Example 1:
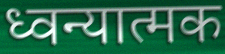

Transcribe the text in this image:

ध्वन्यात्मक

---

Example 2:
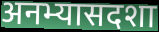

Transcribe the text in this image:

अनभ्यासदशा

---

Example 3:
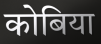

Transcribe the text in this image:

कोबिया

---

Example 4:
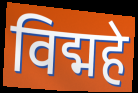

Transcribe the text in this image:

विद्महे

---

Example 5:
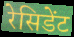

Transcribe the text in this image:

रेसिडेंट